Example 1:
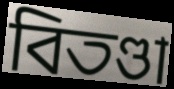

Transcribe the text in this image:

বিতণ্ডা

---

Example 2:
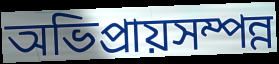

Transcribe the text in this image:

অভিপ্রায়সম্পন্ন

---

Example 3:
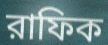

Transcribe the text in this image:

রাফিক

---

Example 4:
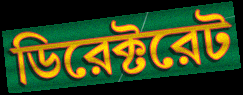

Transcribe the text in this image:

ডিরেক্টরেট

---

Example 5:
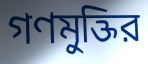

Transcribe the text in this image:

গণমুক্তির